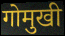
गोमुखी